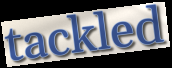
tackled